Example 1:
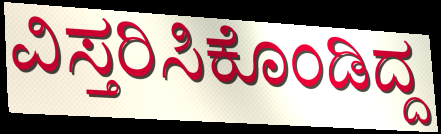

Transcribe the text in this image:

ವಿಸ್ತರಿಸಿಕೊಂಡಿದ್ದ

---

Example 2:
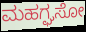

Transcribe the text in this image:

ಮಹಗ್ಘಸೋ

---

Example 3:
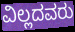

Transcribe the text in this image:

ವಿಲ್ಲದವರು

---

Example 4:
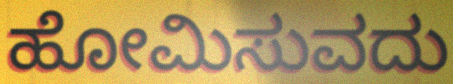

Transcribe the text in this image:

ಹೋಮಿಸುವದು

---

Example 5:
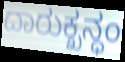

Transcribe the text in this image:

ದಾರುಕ್ಖನ್ಧಂ